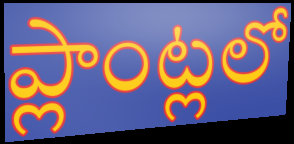
ప్లాంట్లలో